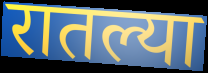
रातल्या